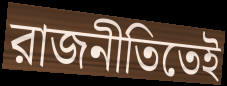
রাজনীতিতেই